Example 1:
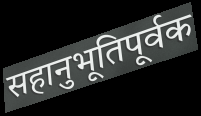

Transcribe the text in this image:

सहानुभूतिपूर्वक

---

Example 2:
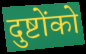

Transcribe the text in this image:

दुष्टोंको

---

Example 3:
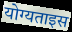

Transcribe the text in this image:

योग्यताइस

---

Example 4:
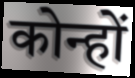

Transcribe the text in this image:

कोन्हों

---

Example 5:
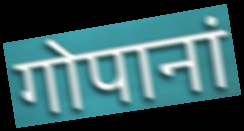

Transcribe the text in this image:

गोपानां